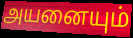
அயனையும்